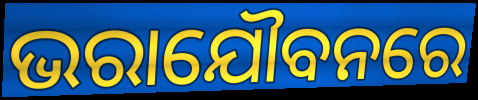
ଭରାଯୌବନରେ